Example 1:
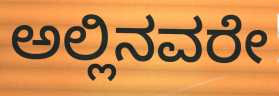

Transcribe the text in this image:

ಅಲ್ಲಿನವರೇ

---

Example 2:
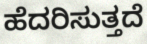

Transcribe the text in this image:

ಹೆದರಿಸುತ್ತದೆ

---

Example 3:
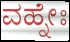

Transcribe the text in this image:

ವಹ್ನೇಃ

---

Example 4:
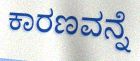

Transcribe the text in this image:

ಕಾರಣವನ್ನೆ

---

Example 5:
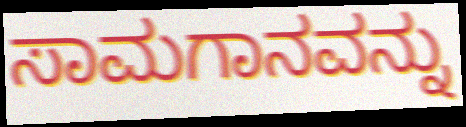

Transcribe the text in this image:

ಸಾಮಗಾನವನ್ನು